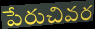
పేరుచివర